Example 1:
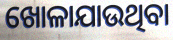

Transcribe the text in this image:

ଖୋଳାଯାଉଥିବା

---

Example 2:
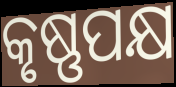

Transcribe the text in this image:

କୃଷ୍ଣପକ୍ଷ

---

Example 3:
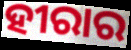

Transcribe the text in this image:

ହୀରାର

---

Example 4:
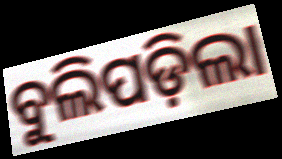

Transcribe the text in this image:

ବୁଲିପଡ଼ିଲା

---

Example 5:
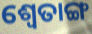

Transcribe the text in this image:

ଶ୍ୱେତାଙ୍ଗ